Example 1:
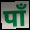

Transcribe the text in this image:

पाँ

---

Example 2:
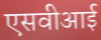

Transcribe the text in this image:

एसवीआई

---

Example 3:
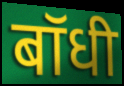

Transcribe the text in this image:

बॉधी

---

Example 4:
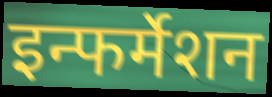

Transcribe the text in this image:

इन्फर्मेशन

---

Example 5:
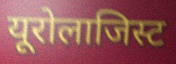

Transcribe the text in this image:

यूरोलाजिस्ट